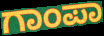
ಗಾಂಪಾ